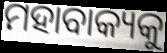
ମହାବାକ୍ୟକୁ